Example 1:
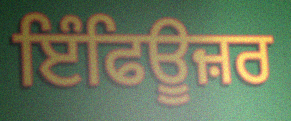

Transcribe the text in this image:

ਇੰਫਿਊਜ਼ਰ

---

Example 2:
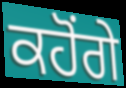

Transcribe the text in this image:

ਕਹੋਂਗੇ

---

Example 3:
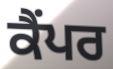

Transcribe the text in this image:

ਕੈਂਪਰ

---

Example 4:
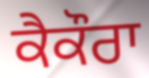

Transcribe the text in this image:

ਕੈਕੌਰਾ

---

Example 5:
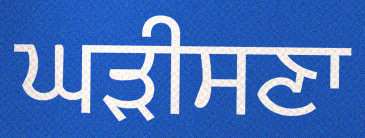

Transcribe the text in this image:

ਘੜੀਸਣਾ